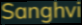
Sanghvi